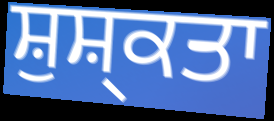
ਸ਼ੁਸ਼੍ਕਤਾ